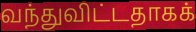
வந்துவிட்டதாகக்